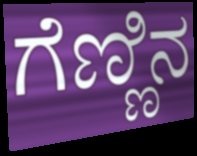
ಗೆಣ್ಣಿನ